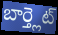
బార్త్లెట్